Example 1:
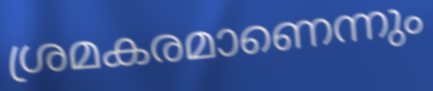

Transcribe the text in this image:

ശ്രമകരമാണെന്നും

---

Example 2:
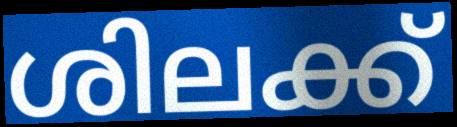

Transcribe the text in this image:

ശിലക്ക്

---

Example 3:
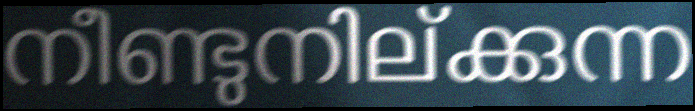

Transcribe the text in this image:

നീണ്ടുനില്ക്കുന്ന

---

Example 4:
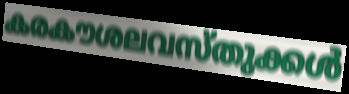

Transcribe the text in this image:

കരകൗശലവസ്തുക്കൾ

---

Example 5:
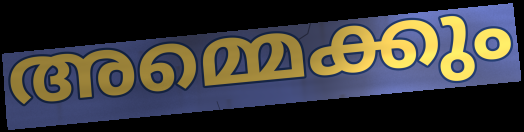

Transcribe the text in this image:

അമ്മെക്കും